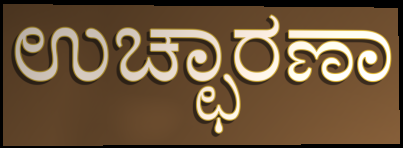
ಉಚ್ಛಾರಣಾ